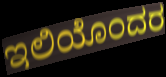
ಇಲಿಯೊಂದರ